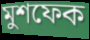
মুশফেক